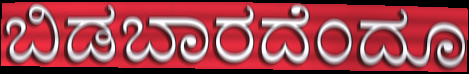
ಬಿಡಬಾರದೆಂದೂ